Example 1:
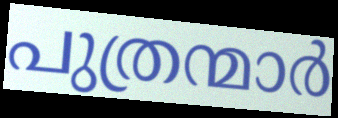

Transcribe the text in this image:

പുത്രന്മാർ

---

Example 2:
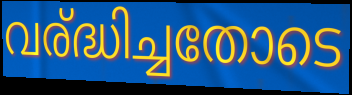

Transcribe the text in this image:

വര്ദ്ധിച്ചതോടെ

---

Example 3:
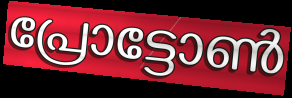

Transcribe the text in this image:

പ്രോട്ടോൺ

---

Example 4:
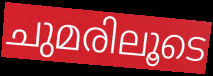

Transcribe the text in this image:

ചുമരിലൂടെ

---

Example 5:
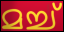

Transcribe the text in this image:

മച്ച്